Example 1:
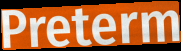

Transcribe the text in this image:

Preterm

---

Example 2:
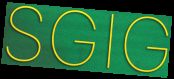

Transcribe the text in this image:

SGIG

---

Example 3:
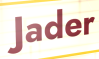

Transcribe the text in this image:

Jader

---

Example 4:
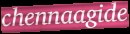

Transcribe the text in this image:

chennaagide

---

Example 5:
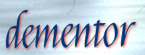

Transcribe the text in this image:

dementor